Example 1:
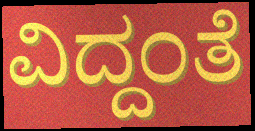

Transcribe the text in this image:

ವಿದ್ದಂತೆ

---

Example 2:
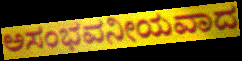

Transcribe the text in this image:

ಅಸಂಭವನೀಯವಾದ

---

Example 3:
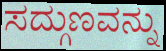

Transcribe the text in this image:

ಸದ್ಗುಣವನ್ನು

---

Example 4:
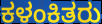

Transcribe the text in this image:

ಕಳಂಕಿತರು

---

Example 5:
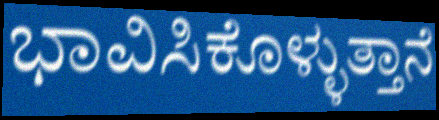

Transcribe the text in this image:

ಭಾವಿಸಿಕೊಳ್ಳುತ್ತಾನೆ